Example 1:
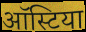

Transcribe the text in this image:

ऑस्टिया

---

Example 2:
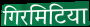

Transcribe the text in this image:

गिरमिटिया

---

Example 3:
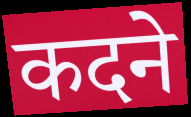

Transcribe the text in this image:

कदने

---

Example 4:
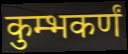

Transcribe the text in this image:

कुम्भकर्णं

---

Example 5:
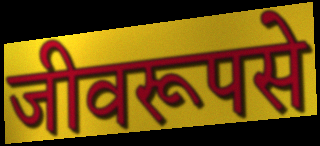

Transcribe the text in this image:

जीवरूपसे